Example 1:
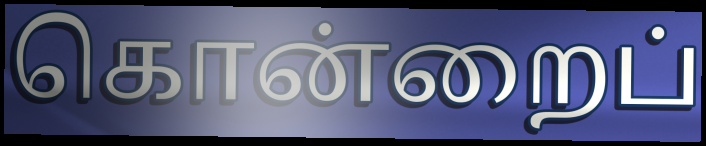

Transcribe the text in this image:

கொன்றைப்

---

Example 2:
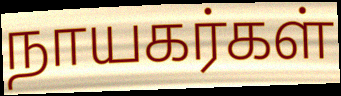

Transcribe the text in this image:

நாயகர்கள்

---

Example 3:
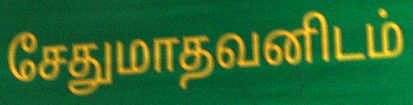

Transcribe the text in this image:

சேதுமாதவனிடம்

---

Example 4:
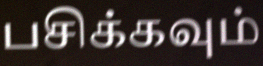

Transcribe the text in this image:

பசிக்கவும்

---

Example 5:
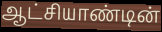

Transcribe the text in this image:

ஆட்சியாண்டின்